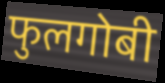
फुलगोबी